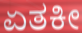
ಏತಕೀ